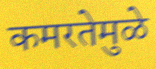
कमरतेमुळे